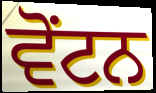
ਵੋਂਟਨ